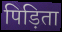
पिड़िता